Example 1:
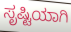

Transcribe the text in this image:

ಸೃಷ್ಟಿಯಾಗಿ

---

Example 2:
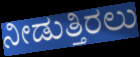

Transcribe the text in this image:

ನೀಡುತ್ತಿರಲು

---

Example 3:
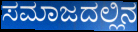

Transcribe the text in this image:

ಸಮಾಜದಲ್ಲಿನ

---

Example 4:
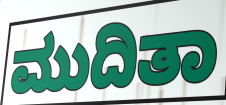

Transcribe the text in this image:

ಮುದಿತಾ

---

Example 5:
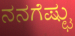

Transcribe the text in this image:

ನನಗೆಷ್ಟು